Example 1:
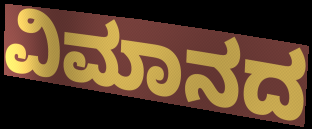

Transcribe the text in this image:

ವಿಮಾನದ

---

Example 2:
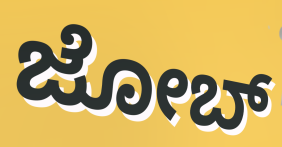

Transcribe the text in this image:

ಜೋಬ್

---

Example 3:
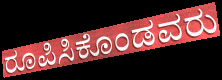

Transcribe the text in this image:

ರೂಪಿಸಿಕೊಂಡವರು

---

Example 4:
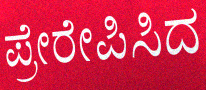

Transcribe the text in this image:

ಪ್ರೇರೇಪಿಸಿದ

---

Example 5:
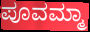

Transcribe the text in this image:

ಪೂವಮ್ಮಾ